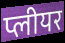
प्लीयर